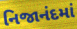
નિજાનંદમાં